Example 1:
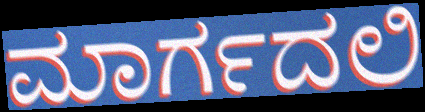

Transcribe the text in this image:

ಮಾರ್ಗದಲಿ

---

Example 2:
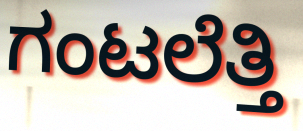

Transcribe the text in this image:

ಗಂಟಲೆತ್ತಿ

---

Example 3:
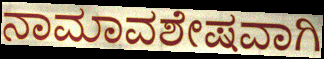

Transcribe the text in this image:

ನಾಮಾವಶೇಷವಾಗಿ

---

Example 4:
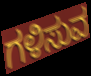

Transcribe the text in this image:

ಗಳಿಸುವ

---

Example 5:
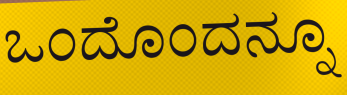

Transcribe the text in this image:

ಒಂದೊಂದನ್ನೂ